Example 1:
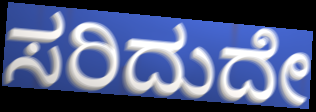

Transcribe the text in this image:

ಸರಿದುದೇ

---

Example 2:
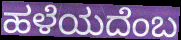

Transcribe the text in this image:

ಹಳೆಯದೆಂಬ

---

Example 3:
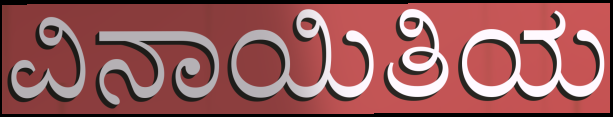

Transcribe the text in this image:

ವಿನಾಯಿತಿಯ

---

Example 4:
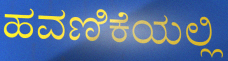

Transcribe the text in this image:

ಹವಣಿಕೆಯಲ್ಲಿ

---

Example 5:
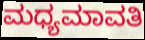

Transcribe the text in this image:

ಮಧ್ಯಮಾವತಿ